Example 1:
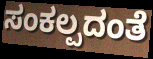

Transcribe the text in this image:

ಸಂಕಲ್ಪದಂತೆ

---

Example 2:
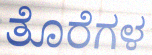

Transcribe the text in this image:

ತೊರೆಗಳ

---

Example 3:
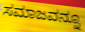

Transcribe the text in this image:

ಸಮಾಜವನ್ನೂ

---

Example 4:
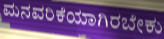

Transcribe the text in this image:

ಮನವರಿಕೆಯಾಗಿರಬೇಕು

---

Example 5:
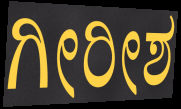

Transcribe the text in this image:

ಗೀರೀಶ